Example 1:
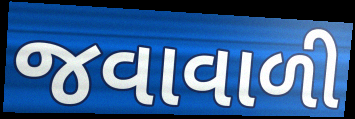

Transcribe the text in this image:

જવાવાળી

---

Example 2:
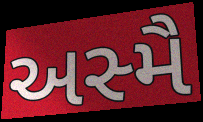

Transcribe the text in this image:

અસ્મૈ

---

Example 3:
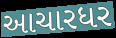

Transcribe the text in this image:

આચારધર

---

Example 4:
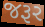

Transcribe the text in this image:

જરૂર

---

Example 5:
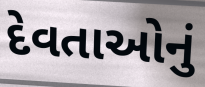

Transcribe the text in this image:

દેવતાઓનું